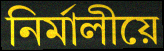
নিৰ্মালীয়ে